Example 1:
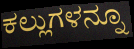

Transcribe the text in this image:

ಕಲ್ಲುಗಳನ್ನೂ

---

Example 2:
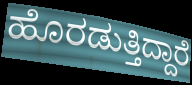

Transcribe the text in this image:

ಹೊರಡುತ್ತಿದ್ದಾರೆ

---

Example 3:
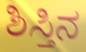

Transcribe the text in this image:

ಶಿಸ್ತಿನ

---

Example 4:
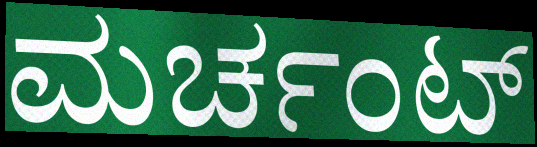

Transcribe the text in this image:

ಮರ್ಚಂಟ್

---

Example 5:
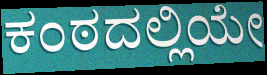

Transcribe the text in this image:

ಕಂಠದಲ್ಲಿಯೇ